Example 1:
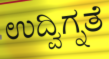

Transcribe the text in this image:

ಉದ್ವಿಗ್ನತೆ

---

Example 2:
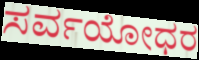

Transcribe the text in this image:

ಸರ್ವಯೋಧರ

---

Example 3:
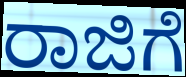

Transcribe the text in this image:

ರಾಜಿಗೆ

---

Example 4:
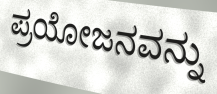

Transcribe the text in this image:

ಪ್ರಯೋಜನವನ್ನು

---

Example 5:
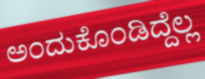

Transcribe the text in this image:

ಅಂದುಕೊಂಡಿದ್ದೆಲ್ಲ